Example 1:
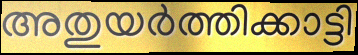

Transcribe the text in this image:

അതുയർത്തിക്കാട്ടി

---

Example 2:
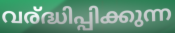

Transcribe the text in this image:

വര്ദ്ധിപ്പിക്കുന്ന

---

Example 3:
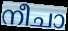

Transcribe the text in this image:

നീചാ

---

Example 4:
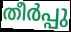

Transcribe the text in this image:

തീർപ്പു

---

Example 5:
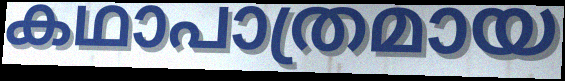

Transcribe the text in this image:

കഥാപാത്രമായ